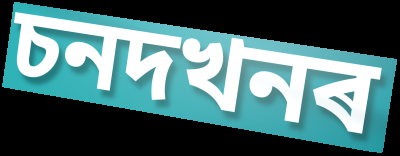
চনদখনৰ